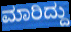
ಮಾರಿದ್ದು